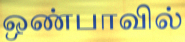
ஒண்பாவில்